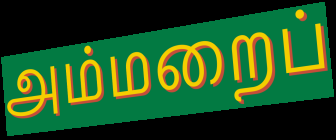
அம்மறைப்